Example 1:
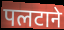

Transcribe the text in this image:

पलटाने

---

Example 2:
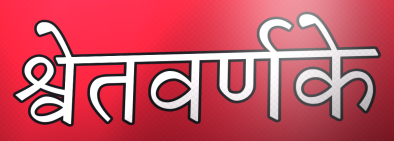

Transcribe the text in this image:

श्वेतवर्णके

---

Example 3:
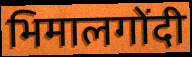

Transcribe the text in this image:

भिमालगोंदी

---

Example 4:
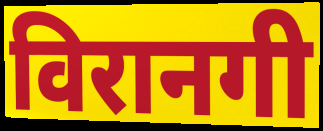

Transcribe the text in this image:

विरानगी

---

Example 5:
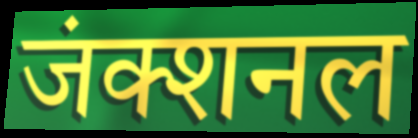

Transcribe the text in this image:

जंक्शनल